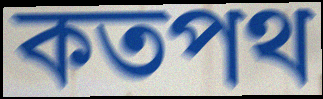
কতপথ